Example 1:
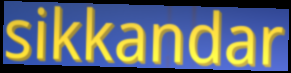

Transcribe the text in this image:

sikkandar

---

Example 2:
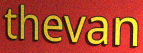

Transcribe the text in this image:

thevan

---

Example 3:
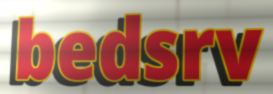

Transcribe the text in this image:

bedsrv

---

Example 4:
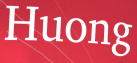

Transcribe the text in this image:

Huong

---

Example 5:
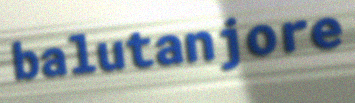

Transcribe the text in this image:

balutanjore